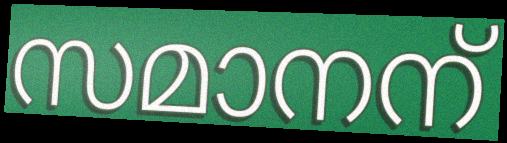
സമാനന്